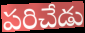
పరిచేడు